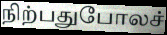
நிற்பதுபோலச்